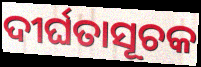
ଦୀର୍ଘତାସୂଚକ